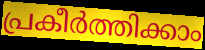
പ്രകീർത്തിക്കാം